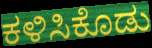
ಕಳಿಸಿಕೊಡು